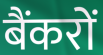
बैंकरों